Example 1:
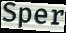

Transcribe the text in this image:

Sper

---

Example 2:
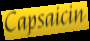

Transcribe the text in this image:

Capsaicin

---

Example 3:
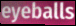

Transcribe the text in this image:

eyeballs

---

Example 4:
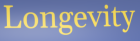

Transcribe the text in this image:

Longevity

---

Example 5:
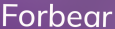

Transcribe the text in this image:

Forbear